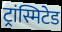
ट्रांस्मिटेड